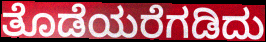
ತೊಡೆಯರೆಗಡಿದು